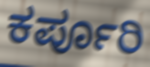
ಕರ್ಪೂರಿ